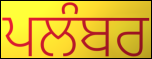
ਪਲੰਬਰ